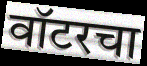
वॉटरचा